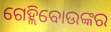
ଗେହ୍ଲିବୋଉଙ୍କର